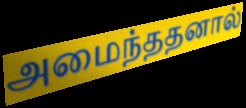
அமைந்ததனால்